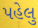
પહેલુ